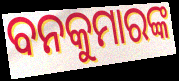
ବନକୁମାରଙ୍କ